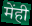
मेंही